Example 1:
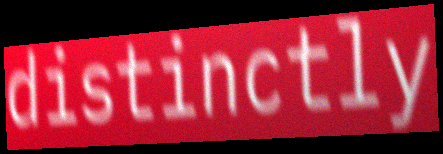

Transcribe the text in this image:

distinctly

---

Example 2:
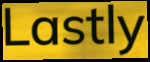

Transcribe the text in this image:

Lastly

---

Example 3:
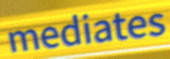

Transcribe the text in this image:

mediates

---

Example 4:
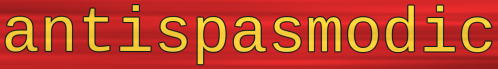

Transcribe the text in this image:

antispasmodic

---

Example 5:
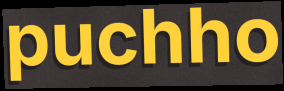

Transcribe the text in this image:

puchho